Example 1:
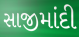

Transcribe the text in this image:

સાજીમાંદી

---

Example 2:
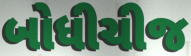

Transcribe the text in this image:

બોધીચીજ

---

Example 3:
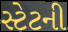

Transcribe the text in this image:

સ્ટેટની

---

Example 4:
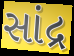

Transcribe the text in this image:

સાંદ્ર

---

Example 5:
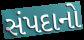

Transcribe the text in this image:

સંપદાનો